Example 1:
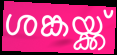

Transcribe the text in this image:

ശങ്കയ്ക്ക്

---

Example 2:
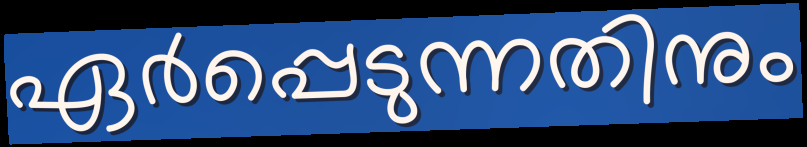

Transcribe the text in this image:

ഏർപ്പെടുന്നതിനും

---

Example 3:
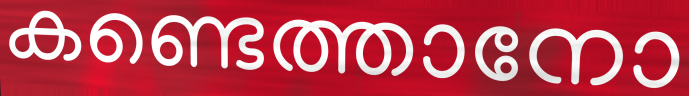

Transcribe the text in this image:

കണ്ടെത്താനോ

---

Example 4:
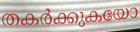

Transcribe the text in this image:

തകർക്കുകയോ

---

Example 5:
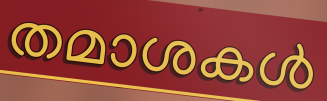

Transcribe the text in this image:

തമാശകൾ